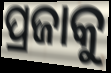
ପ୍ରଜାକୁ